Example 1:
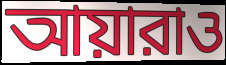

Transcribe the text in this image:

আয়ারাও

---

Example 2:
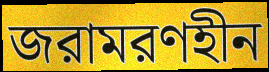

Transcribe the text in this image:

জরামরণহীন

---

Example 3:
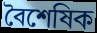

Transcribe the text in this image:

বৈশেষিক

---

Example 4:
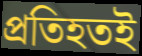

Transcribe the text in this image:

প্রতিহতই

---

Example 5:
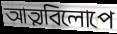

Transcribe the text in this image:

আত্মবিলোপে